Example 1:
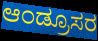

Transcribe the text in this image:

ಆಂಡ್ರೂಸರ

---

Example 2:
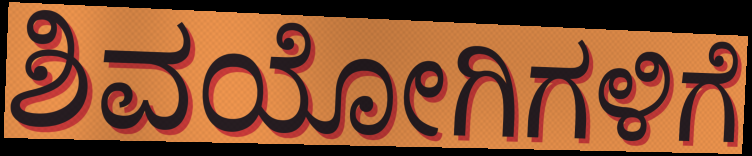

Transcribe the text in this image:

ಶಿವಯೋಗಿಗಳಿಗೆ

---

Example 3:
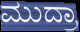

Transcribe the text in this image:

ಮುದ್ರಾ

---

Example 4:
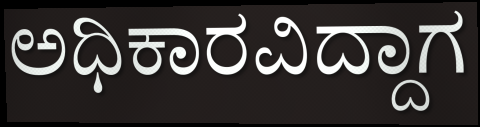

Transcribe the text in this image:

ಅಧಿಕಾರವಿದ್ದಾಗ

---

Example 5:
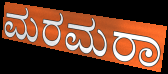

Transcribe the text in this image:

ಮರಮರಾ